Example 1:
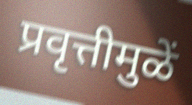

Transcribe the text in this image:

प्रवृत्तीमुळें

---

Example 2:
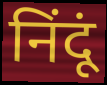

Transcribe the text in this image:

निंदूं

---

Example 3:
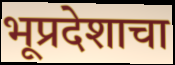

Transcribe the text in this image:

भूप्रदेशाचा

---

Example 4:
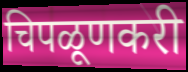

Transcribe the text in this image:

चिपळूणकरी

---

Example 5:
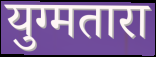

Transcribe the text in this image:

युग्मतारा